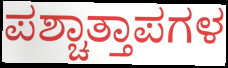
ಪಶ್ಚಾತ್ತಾಪಗಳ